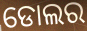
ଡୋଲର